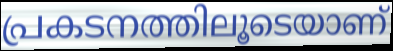
പ്രകടനത്തിലൂടെയാണ്